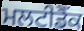
ਮਲਟੀਡੈੱਕ